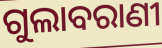
ଗୁଲାବରାଣୀ